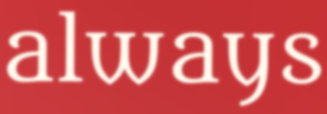
always